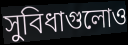
সুবিধাগুলোও